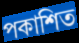
পকাশিত